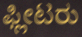
ಫ್ಲೀಟರು